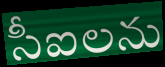
సీఐలను